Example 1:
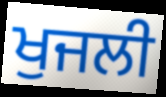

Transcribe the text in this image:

ਖੁਜਲੀ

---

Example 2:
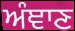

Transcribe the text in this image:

ਅੰਞਾਣ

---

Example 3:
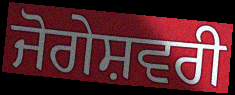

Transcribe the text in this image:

ਜੋਗੇਸ਼ਵਰੀ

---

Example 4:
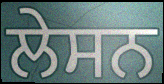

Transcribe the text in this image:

ਲੇਸਨ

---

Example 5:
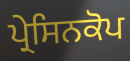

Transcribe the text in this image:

ਪ੍ਰੇਸਿਨਕੋਪ